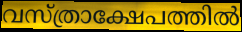
വസ്ത്രാക്ഷേപത്തിൽ